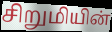
சிறுமியின்